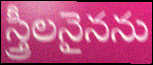
స్త్రీలనైనను